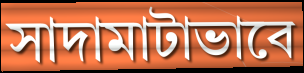
সাদামাটাভাবে